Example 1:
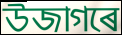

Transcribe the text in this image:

উজাগৰে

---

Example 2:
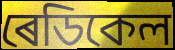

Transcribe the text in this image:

ৰেডিকেল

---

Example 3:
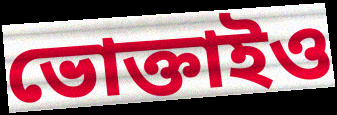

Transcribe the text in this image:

ভোক্তাইও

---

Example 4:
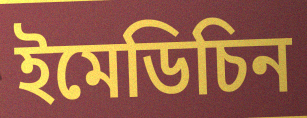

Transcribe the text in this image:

ইমেডিচিন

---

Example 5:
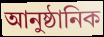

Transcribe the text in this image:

আনুষ্ঠানিক